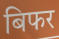
बिफर